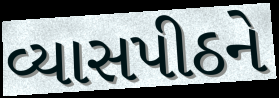
વ્યાસપીઠને